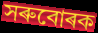
সৰুবোৰক